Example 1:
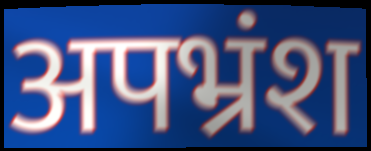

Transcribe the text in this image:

अपभ्रंश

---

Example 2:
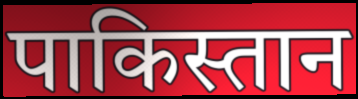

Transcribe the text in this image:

पाकिस्‍तान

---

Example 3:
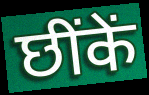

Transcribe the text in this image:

छींकें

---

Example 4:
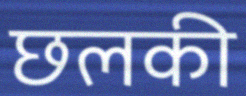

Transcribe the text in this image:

छलकी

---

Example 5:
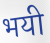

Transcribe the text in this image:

भयी